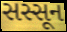
સસ્સૂન